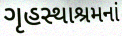
ગૃહસ્થાશ્રમનાં